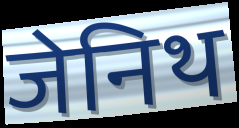
जेनिथ